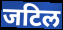
जटिल